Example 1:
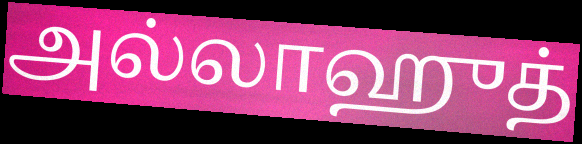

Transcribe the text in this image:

அல்லாஹுத்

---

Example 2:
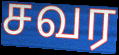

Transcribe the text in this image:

சவர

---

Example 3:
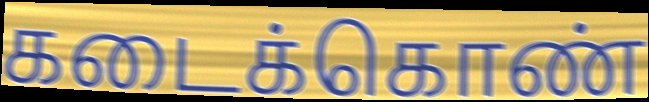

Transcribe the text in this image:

கடைக்கொண்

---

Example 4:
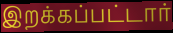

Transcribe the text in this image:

இறக்கப்பட்டார்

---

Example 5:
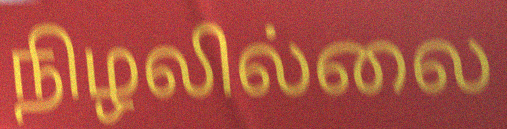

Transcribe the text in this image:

நிழலில்லை